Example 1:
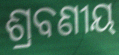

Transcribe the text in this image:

ଶ୍ରବଣୀୟ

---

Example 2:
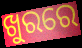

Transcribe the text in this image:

ଖୁରରେ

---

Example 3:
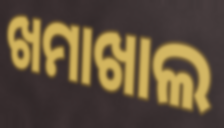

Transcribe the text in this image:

ଖମାଖାଲ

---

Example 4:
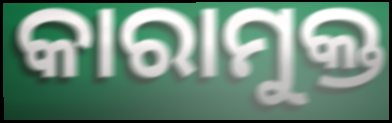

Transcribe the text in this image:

କାରାମୁକ୍ତ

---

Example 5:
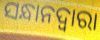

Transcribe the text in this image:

ସନ୍ଧାନଦ୍ୱାରା